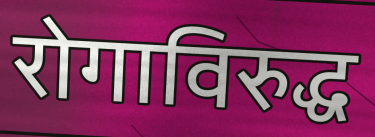
रोगाविरुद्ध